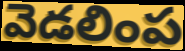
వెడలింప